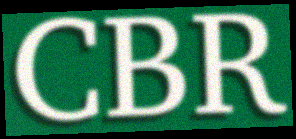
CBR